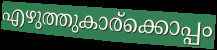
എഴുത്തുകാര്ക്കൊപ്പം